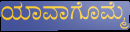
ಯಾವಾಗೊಮ್ಮೆ